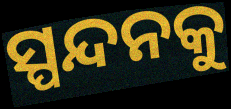
ସ୍ପନ୍ଦନକୁ